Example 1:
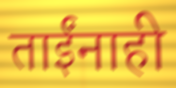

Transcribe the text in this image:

ताईंनाही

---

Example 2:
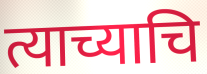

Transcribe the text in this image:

त्याच्याचि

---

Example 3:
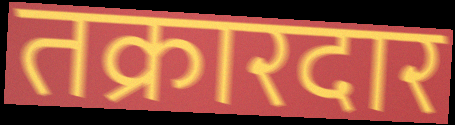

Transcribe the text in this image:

तक्रारदार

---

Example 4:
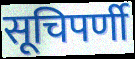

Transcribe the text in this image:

सूचिपर्णी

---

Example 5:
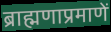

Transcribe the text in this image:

ब्राह्मणाप्रमाणें